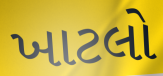
ખાટલો